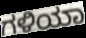
ಗಳಿಯಾ